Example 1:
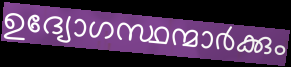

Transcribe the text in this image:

ഉദ്യോഗസ്ഥന്മാർക്കും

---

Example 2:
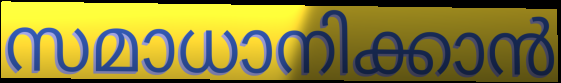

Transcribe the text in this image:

സമാധാനിക്കാൻ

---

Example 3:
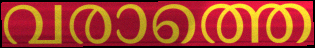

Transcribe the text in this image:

വരാത്തെ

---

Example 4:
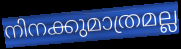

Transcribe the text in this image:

നിനക്കുമാത്രമല്ല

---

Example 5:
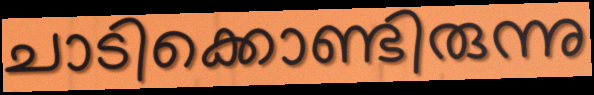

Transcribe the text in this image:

ചാടിക്കൊണ്ടിരുന്നു